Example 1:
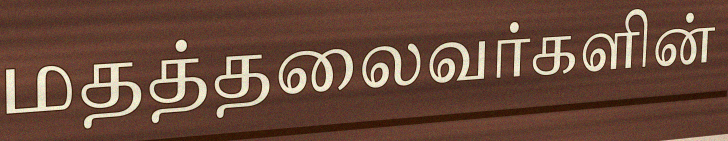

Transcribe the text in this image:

மதத்தலைவர்களின்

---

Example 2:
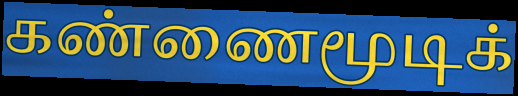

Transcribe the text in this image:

கண்ணைமூடிக்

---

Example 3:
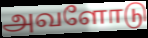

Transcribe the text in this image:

அவளோடு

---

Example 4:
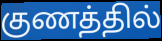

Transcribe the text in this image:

குணத்தில்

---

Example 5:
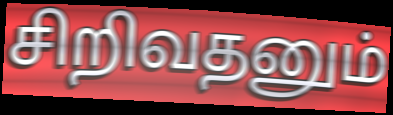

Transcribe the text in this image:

சிறிவதனும்